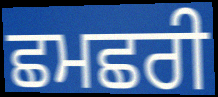
ਛਮਛਰੀ